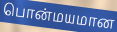
பொன்மயமான